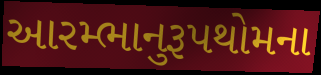
આરમ્ભાનુરૂપથોમના